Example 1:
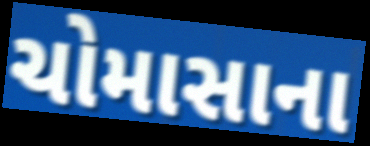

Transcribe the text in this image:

ચોમાસાના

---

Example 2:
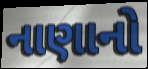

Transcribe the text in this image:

નાણાનો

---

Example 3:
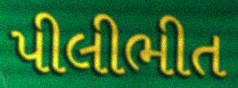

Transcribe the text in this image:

પીલીભીત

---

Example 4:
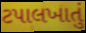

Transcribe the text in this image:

ટપાલખાતું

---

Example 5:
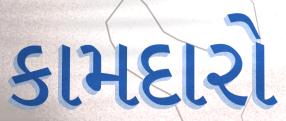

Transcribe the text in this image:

કામદારો